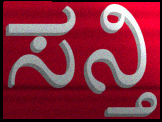
ಸನ್ತಿ